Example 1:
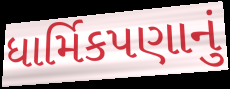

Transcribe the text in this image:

ધાર્મિકપણાનું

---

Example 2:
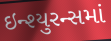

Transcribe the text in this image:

ઇન્શ્યુરન્સમાં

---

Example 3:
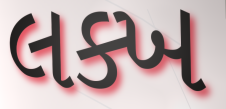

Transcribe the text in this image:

લક્ખ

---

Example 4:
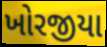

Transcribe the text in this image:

ખોરજીયા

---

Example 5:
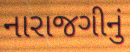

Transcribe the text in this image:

નારાજગીનું